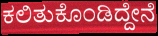
ಕಲಿತುಕೊಂಡಿದ್ದೇನೆ